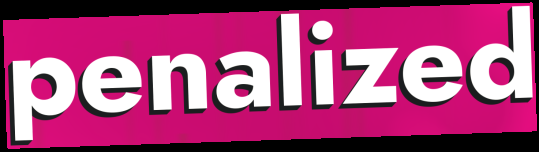
penalized